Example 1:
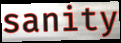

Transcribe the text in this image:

sanity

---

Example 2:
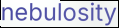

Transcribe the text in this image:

nebulosity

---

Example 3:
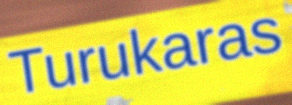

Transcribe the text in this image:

Turukaras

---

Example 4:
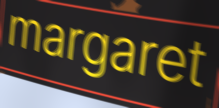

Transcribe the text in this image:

margaret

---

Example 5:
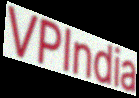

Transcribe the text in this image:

VPIndia